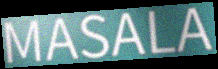
MASALA